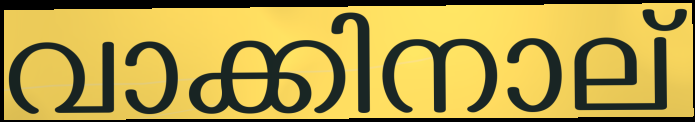
വാക്കിനാല്